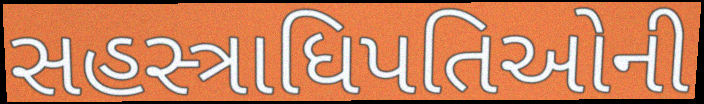
સહસ્ત્રાધિપતિઓની